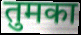
तुमका